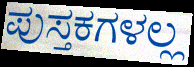
ಪುಸ್ತಕಗಳಲ್ಲ